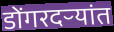
डोंगरदऱ्यांत